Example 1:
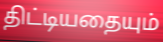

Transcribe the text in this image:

திட்டியதையும்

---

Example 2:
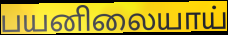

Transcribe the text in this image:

பயனிலையாய்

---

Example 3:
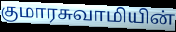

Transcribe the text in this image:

குமாரசுவாமியின்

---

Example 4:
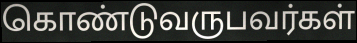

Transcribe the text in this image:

கொண்டுவருபவர்கள்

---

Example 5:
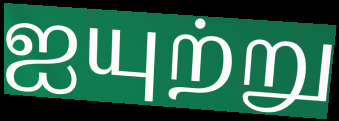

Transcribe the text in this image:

ஐயுற்று